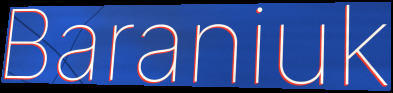
Baraniuk